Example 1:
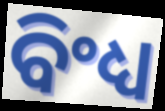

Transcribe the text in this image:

ବିଂଧ୍ୟ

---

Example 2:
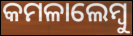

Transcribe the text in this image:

କମଳାଲେମ୍ୱୁ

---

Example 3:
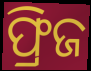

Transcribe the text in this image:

ଫ୍ରିଜ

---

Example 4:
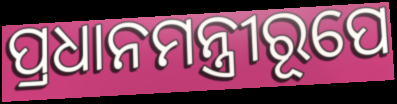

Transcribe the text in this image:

ପ୍ରଧାନମନ୍ତ୍ରୀରୂପେ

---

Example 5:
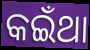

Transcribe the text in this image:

କଇଁଥା